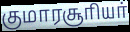
குமாரசூரியர்